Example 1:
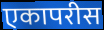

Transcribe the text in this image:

एकापरीस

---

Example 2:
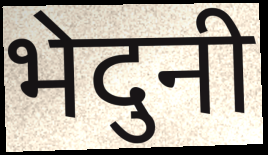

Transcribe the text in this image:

भेदुनी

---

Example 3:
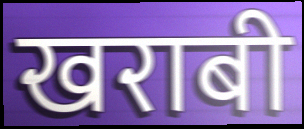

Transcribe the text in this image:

खराबी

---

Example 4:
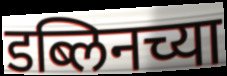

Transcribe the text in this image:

डब्लिनच्या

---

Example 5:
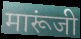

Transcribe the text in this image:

मारूंजी